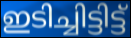
ഇടിച്ചിട്ടിട്ട്